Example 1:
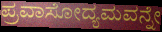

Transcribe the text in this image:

ಪ್ರವಾಸೋದ್ಯಮವನ್ನೇ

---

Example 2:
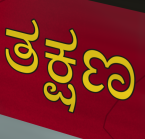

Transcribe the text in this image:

ತಕ್ಷಣ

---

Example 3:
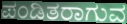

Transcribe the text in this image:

ಪಂಡಿತರಾಗುವ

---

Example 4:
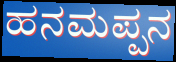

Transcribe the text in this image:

ಹನಮಪ್ಪನ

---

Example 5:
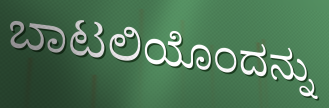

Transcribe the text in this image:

ಬಾಟಲಿಯೊಂದನ್ನು